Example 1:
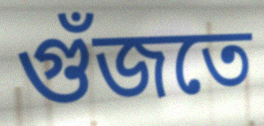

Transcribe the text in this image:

গুঁজতে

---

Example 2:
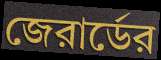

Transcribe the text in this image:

জেরার্ডের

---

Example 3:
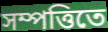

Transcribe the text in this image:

সম্পত্তিতে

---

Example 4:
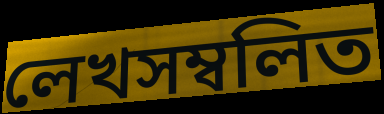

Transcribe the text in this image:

লেখসম্বলিত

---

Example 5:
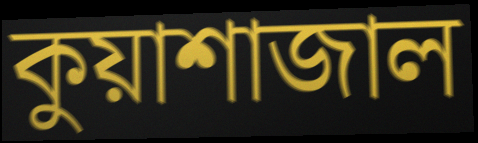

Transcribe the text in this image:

কুয়াশাজাল